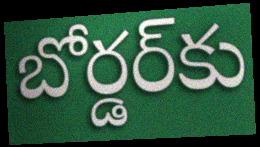
బోర్డర్‌కు